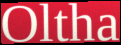
Oltha